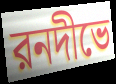
রনদীভে